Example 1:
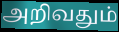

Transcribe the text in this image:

அறிவதும்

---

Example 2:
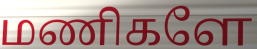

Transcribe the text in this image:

மணிகளே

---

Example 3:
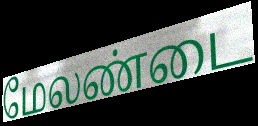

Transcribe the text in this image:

மேலண்டை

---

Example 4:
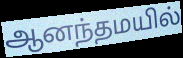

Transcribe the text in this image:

ஆனந்தமயில்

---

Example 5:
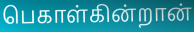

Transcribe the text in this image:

பெகாள்கின்றான்